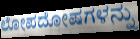
ಲೋಪದೋಷಗಳನ್ನು